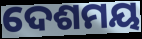
ଦେଶମୟ